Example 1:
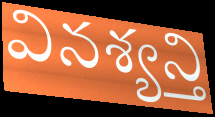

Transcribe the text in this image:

వినశ్యన్తి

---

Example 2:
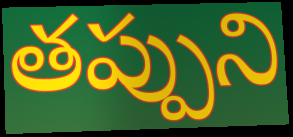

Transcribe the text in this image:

తప్పుని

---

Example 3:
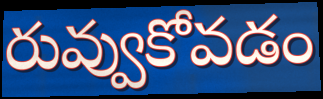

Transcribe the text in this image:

రువ్వుకోవడం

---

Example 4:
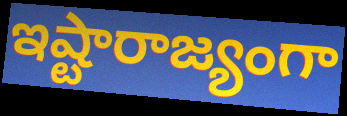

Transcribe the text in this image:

ఇష్టారాజ్యంగా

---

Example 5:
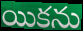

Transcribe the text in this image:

యికను